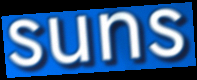
suns